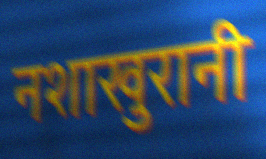
नशाखुरानी